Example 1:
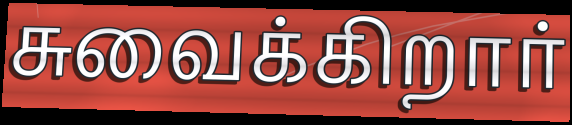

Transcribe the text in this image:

சுவைக்கிறார்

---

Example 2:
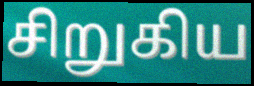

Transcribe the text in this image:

சிறுகிய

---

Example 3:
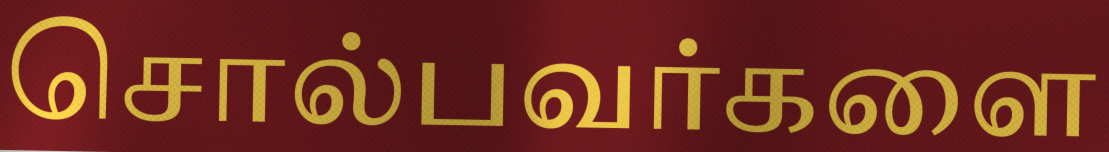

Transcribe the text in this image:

சொல்பவர்களை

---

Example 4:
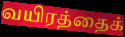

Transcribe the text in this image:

வயிரத்தைக்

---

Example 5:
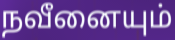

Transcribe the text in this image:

நவீனையும்